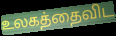
உலகத்தைவிட